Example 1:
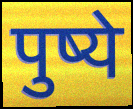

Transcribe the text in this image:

पुष्ये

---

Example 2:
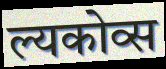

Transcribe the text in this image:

ल्यकोव्स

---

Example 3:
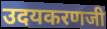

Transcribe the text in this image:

उदयकरणजी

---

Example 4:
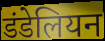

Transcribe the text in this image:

डंडेलियन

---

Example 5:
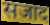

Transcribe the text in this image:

सजाद